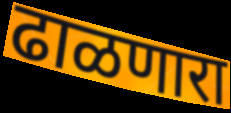
ढाळणारा